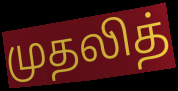
முதலித்